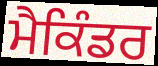
ਮੈਕਿੰਡਰ